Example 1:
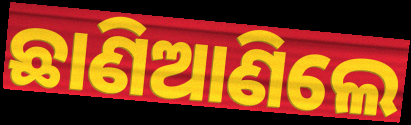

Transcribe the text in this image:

ଛାଣିଆଣିଲେ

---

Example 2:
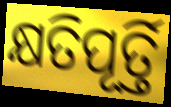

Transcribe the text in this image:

କ୍ଷତିପୂର୍ତ୍ତି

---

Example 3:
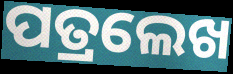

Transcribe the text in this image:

ପତ୍ରଲେଖ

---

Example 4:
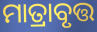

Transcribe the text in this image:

ମାତ୍ରାବୃତ୍ତ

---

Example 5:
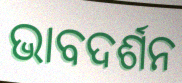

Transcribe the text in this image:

ଭାବଦର୍ଶନ